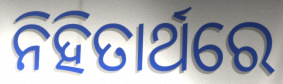
ନିହିତାର୍ଥରେ